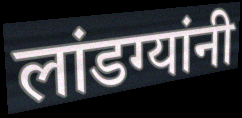
लांडग्यांनी